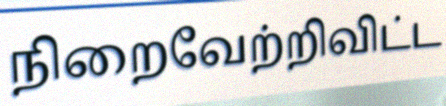
நிறைவேற்றிவிட்ட